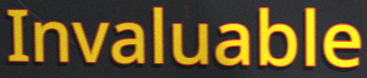
Invaluable